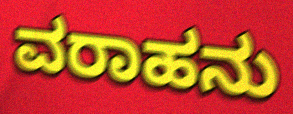
ವರಾಹನು